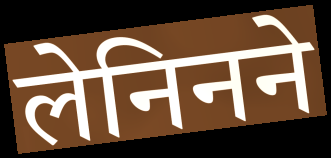
लेनिनने